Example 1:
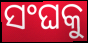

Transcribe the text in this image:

ସଂଘକୁ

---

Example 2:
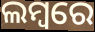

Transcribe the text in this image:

ଲମ୍ବରେ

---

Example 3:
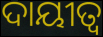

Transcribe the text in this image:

ଦାୟୀତ୍ୱ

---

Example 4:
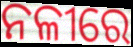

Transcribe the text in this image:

ନଳୀରେ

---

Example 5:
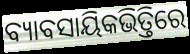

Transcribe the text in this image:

ବ୍ୟାବସାୟିକଭିତ୍ତିରେ